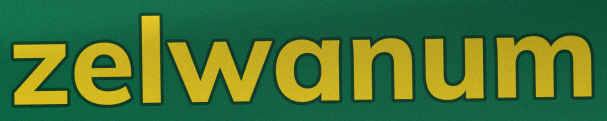
zelwanum